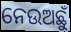
ନେଉଅଛୁଁ